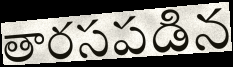
తారసపడిన